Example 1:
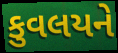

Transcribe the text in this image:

કુવલયને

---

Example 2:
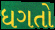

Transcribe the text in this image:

ધગતો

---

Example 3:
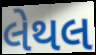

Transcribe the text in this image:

લેથલ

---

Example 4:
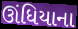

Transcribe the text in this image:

ઊંધિયાના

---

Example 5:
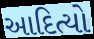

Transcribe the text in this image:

આદિત્યો